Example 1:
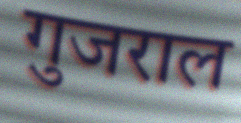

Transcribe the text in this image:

गुजराल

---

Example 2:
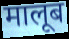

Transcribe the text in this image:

मालूब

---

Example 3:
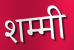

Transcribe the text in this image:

शम्मी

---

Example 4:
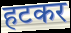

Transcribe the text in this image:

हटकर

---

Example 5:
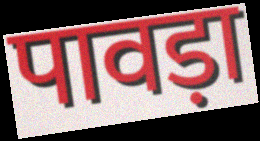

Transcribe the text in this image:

पावड़ा